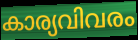
കാര്യവിവരം